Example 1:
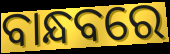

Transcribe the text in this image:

ବାନ୍ଧବରେ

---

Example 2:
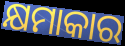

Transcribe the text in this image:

କ୍ଷମାକାର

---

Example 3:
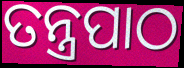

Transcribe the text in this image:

ତନ୍ତ୍ରପାଠ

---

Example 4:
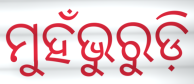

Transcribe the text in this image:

ମୁହଁଭୁରୁଡ଼ି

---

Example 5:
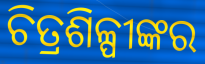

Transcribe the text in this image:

ଚିତ୍ରଶିଳ୍ପୀଙ୍କର